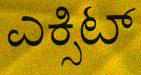
ಎಕ್ಸಿಟ್